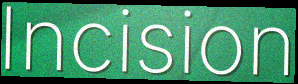
Incision